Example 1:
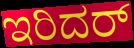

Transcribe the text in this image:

ಇರಿದರ್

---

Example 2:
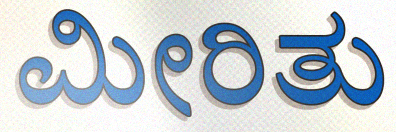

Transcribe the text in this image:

ಮೀರಿತು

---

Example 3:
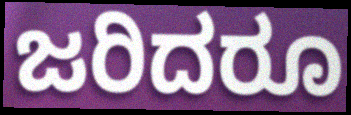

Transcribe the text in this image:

ಜರಿದರೂ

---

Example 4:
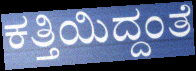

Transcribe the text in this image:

ಕತ್ತಿಯಿದ್ದಂತೆ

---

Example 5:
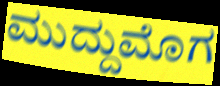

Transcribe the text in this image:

ಮುದ್ದುಮೊಗ